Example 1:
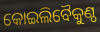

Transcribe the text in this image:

କୋଇଲିବୈକୁଣ୍ଠ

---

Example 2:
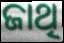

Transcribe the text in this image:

ଜାଥି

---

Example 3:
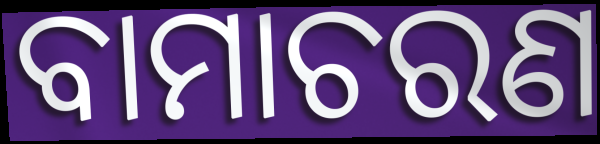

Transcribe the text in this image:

ବାମାଚରଣ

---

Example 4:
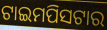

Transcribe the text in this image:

ଟାଇମପିସଟାର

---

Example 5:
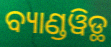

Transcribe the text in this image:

ବ୍ୟାଣ୍ଡୱିଡ୍ଥ